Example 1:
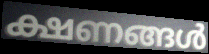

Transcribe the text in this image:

ക്ഷണങ്ങൾ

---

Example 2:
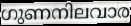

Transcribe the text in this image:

ഗുണനിലവാര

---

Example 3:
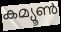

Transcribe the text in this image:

കമ്യൂൺ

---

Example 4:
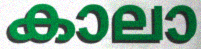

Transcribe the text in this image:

കാലാ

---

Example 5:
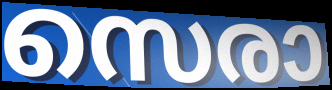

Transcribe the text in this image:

സെരാ